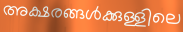
അക്ഷരങ്ങൾക്കുള്ളിലെ